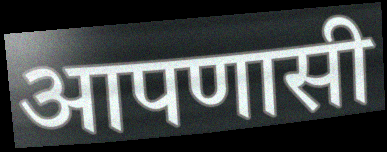
आपणासी